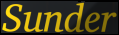
Sunder